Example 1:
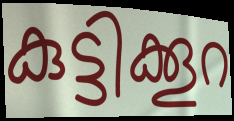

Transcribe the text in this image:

കുട്ടിക്കൂറ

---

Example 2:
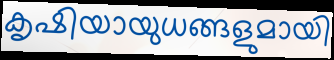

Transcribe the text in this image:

കൃഷിയായുധങ്ങളുമായി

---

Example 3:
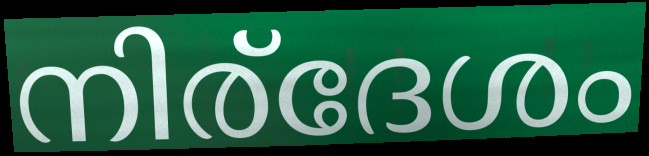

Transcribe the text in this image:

നിര്ദേശം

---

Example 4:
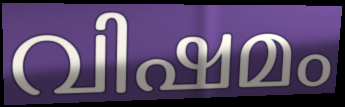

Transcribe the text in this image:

വിഷമം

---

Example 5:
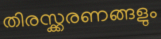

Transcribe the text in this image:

തിരസ്ക്കരണങ്ങളും